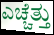
ಎಚ್ಚೆತ್ತು